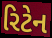
રિટેન